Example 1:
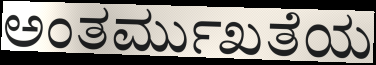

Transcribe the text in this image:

ಅಂತರ್ಮುಖತೆಯ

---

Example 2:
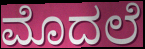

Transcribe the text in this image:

ಮೊದಲೆ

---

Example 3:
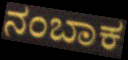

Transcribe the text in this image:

ನಂಬಾಕ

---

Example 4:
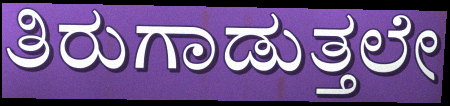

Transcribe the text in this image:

ತಿರುಗಾಡುತ್ತಲೇ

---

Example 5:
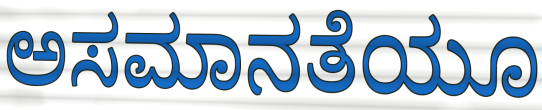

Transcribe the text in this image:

ಅಸಮಾನತೆಯೂ